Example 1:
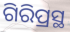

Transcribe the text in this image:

ଗିରିପ୍ରସ୍ଥ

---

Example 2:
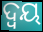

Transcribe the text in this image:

ଦ୍ୱୟ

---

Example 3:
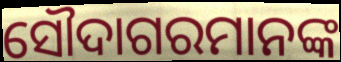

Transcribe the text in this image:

ସୌଦାଗରମାନଙ୍କ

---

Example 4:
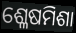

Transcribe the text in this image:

ଶ୍ଳେଷମିଶା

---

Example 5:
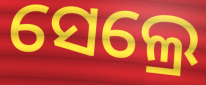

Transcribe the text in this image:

ସେଲ୍ରେ